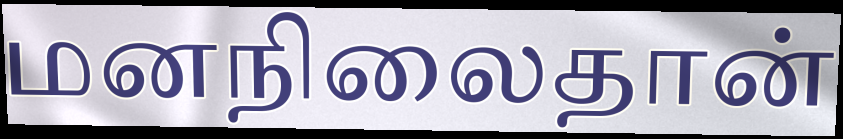
மனநிலைதான்